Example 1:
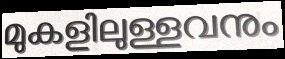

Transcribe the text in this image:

മുകളിലുള്ളവനും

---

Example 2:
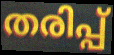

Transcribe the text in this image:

തരിപ്പ്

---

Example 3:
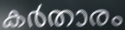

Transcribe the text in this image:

കർതാരം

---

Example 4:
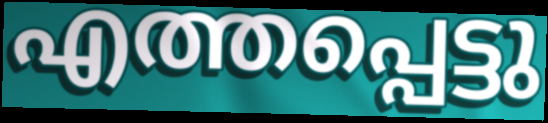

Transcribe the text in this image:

എത്തപ്പെട്ടു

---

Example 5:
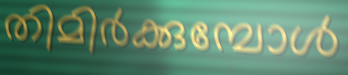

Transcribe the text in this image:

തിമിർക്കുമ്പോൾ